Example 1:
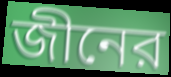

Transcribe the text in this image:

জীনের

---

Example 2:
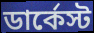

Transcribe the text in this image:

ডার্কেস্ট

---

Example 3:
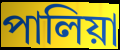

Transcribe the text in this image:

পালিয়া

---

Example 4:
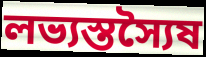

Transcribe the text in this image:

লভ্যস্তস্যৈষ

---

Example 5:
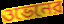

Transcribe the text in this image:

ওভেনের